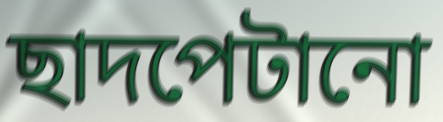
ছাদপেটানো